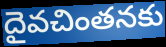
దైవచింతనకు